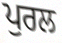
ਪੁਰਲ